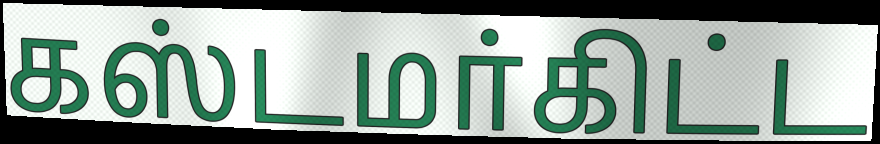
கஸ்டமர்கிட்ட